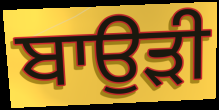
ਬਾਉੜੀ